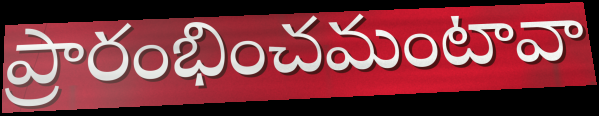
ప్రారంభించమంటావా